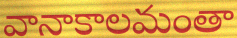
వానాకాలమంతా